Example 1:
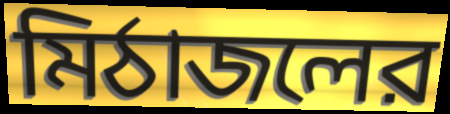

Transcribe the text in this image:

মিঠাজলের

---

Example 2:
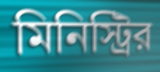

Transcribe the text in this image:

মিনিস্ট্রির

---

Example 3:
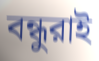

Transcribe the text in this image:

বন্ধুরাই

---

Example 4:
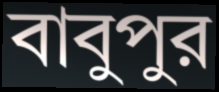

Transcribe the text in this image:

বাবুপুর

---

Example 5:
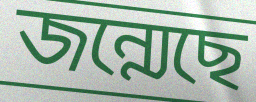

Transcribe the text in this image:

জন্মেছে